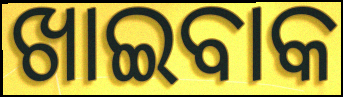
ଖାଇବାକ